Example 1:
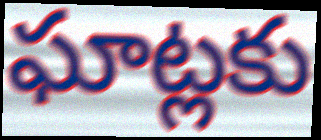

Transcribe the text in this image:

ఘాట్లకు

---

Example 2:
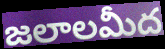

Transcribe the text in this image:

జలాలమీద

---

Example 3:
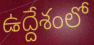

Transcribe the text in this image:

ఉద్దేశంలో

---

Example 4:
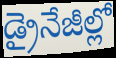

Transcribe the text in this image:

డ్రైనేజీల్లో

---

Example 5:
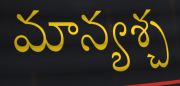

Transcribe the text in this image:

మాన్యశ్చ